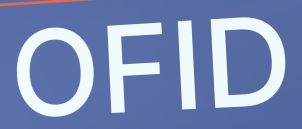
OFID